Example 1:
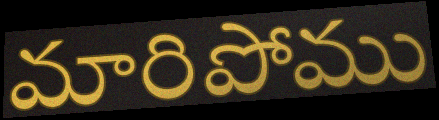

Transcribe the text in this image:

మారిపోము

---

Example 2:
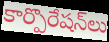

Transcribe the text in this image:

కార్పొరేషన్‌లు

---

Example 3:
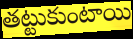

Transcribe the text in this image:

తట్టుకుంటాయి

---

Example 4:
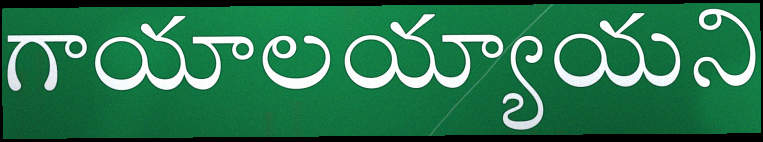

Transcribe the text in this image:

గాయాలయ్యాయని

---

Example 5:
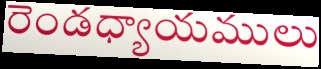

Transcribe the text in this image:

రెండధ్యాయములు